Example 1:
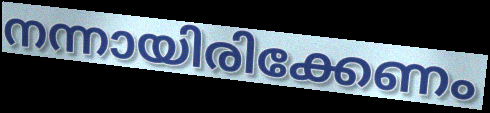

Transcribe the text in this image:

നന്നായിരിക്കേണം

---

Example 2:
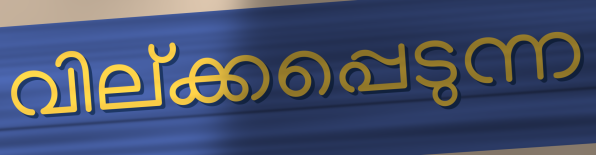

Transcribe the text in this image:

വില്ക്കപ്പെടുന്ന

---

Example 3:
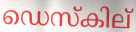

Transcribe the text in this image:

ഡെസ്കില്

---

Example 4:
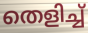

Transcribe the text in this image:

തെളിച്ച്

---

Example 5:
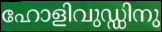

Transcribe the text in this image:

ഹോളിവുഡ്ഡിനു